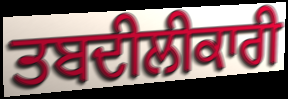
ਤਬਦੀਲੀਕਾਰੀ